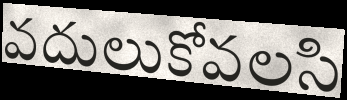
వదులుకోవలసి